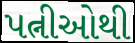
પત્નીઓથી